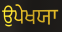
ਉਪੇਖਯਾ